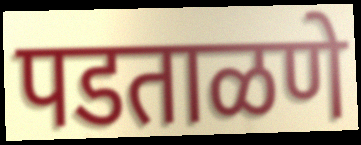
पडताळणे